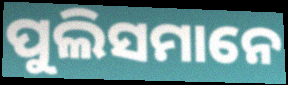
ପୁଲିସମାନେ